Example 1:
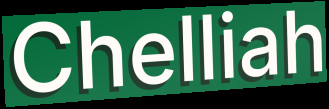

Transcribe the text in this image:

Chelliah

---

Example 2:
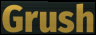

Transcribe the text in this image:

Grush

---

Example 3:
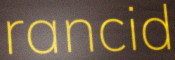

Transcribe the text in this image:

rancid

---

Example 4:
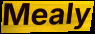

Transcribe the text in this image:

Mealy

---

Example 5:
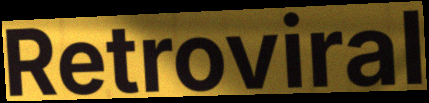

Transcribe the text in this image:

Retroviral